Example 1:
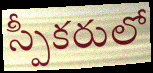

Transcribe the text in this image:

స్పీకరులో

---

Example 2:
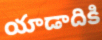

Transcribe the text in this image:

యాడాదికి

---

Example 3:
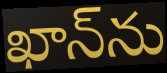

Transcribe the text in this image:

ఖాన్‌ను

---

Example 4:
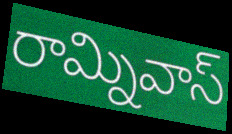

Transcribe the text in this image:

రామ్నివాస్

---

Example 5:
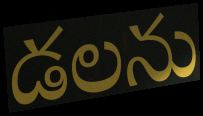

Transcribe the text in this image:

డలను